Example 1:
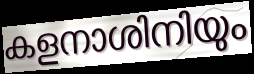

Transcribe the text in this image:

കളനാശിനിയും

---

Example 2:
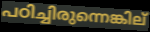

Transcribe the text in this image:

പഠിച്ചിരുന്നെങ്കില്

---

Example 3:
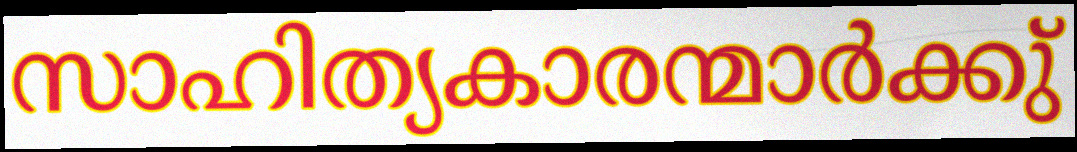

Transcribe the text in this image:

സാഹിത്യകാരന്മാർക്കു്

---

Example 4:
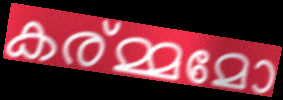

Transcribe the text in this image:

കര്മ്മമോ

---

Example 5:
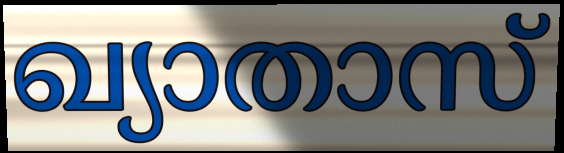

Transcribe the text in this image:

ഖ്യാതാസ്